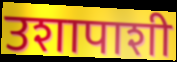
उशापाशी